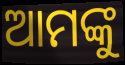
ଆମଙ୍କୁ